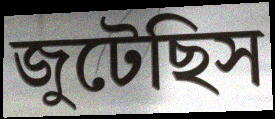
জুটেছিস